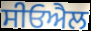
ਸੀਓਐਲ